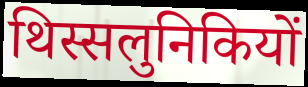
थिस्सलुनिकियों